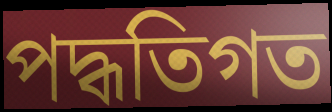
পদ্ধতিগত